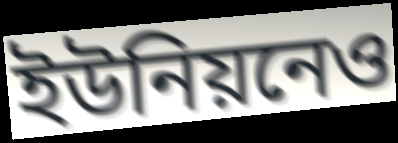
ইউনিয়নেও